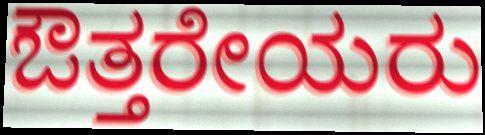
ಔತ್ತರೇಯರು